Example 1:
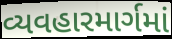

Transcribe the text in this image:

વ્યવહારમાર્ગમાં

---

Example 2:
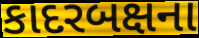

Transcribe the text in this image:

કાદરબક્ષના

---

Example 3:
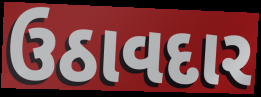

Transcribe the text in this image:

ઉઠાવદાર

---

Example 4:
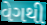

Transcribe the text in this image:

વેગથી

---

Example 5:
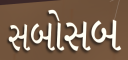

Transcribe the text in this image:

સબોસબ